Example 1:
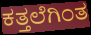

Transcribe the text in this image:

ಕತ್ತಲೆಗಿಂತ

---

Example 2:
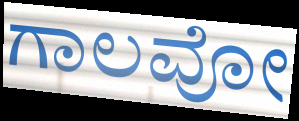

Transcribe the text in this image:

ಗಾಲವೋ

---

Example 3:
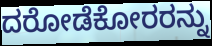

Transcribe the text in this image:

ದರೋಡೆಕೋರರನ್ನು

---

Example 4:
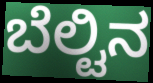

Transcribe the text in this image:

ಬೆಲ್ಟಿನ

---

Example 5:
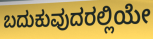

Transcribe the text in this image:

ಬದುಕುವುದರಲ್ಲಿಯೇ